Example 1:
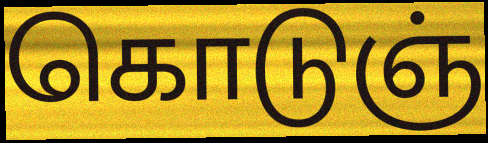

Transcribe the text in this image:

கொடுஞ்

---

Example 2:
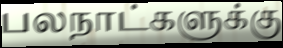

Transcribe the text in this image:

பலநாட்களுக்கு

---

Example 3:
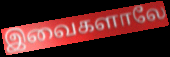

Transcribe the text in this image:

இவைகளாலே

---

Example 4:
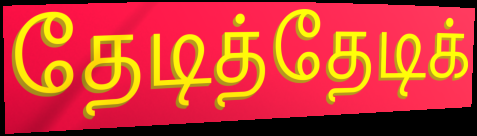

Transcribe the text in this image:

தேடித்தேடிக்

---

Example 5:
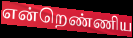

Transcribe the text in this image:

என்றெண்ணிய